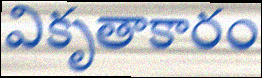
వికృతాకారం